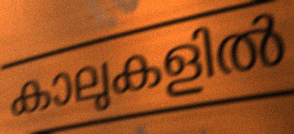
കാലുകളിൽ